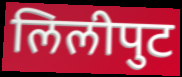
लिलीपुट